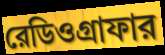
রেডিওগ্রাফার